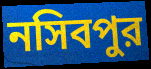
নসিবপুর